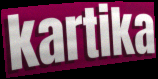
kartika